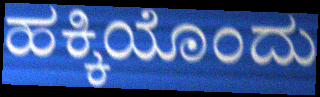
ಹಕ್ಕಿಯೊಂದು